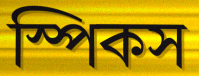
স্পিকস